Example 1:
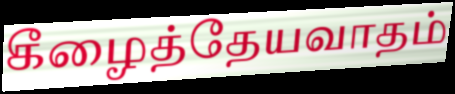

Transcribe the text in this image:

கீழைத்தேயவாதம்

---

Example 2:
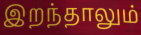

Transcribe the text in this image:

இறந்தாலும்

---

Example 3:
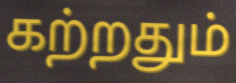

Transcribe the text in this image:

கற்றதும்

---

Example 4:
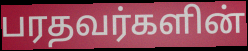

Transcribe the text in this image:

பரதவர்களின்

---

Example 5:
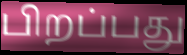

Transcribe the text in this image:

பிறப்பது